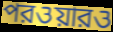
পরওয়ারও